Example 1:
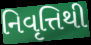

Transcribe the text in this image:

નિવૃત્તિથી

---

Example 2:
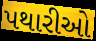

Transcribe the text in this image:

પથારીઓ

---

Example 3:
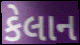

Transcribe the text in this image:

કેલાન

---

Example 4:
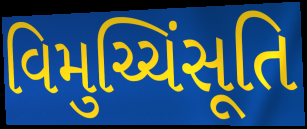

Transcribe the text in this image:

વિમુચ્ચિંસૂતિ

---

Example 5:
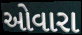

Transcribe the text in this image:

ઓવારા